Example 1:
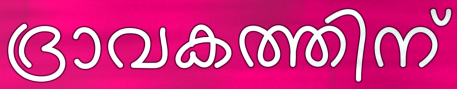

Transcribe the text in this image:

ദ്രാവകത്തിന്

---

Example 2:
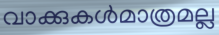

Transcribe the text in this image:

വാക്കുകൾമാത്രമല്ല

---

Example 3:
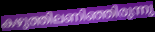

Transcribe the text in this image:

കഴുത്തിലണിഞ്ഞിരുന്നു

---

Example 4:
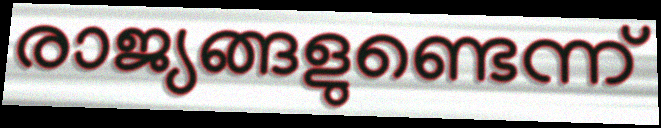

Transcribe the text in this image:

രാജ്യങ്ങളുണ്ടെന്ന്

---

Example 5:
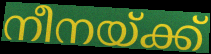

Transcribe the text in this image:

നീനയ്ക്ക്